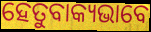
ହେତୁବାକ୍ୟଭାବେ